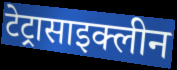
टेट्रासाइक्लीन